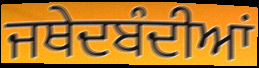
ਜਥੇਦਬੰਦੀਆਂ